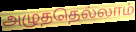
அழுததெல்லாம்